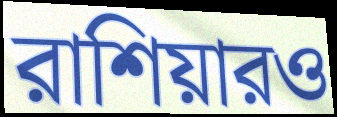
রাশিয়ারও